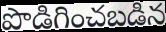
పొడిగించబడిన